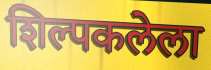
शिल्पकलेला